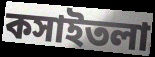
কসাইতলা